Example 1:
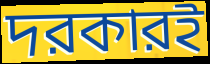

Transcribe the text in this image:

দরকারই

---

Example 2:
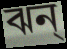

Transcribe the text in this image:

ঝন্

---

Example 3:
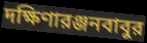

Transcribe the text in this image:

দক্ষিণারঞ্জনবাবুর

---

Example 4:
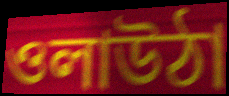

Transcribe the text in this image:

ওলাউঠা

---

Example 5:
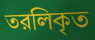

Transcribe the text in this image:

তরলিকৃত